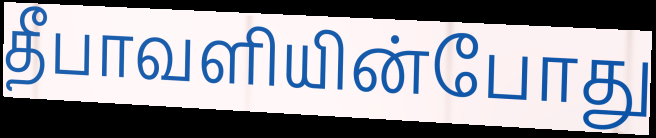
தீபாவளியின்போது